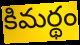
కిమర్థం